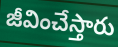
జీవించేస్తారు